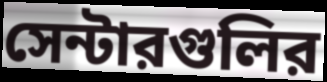
সেন্টারগুলির